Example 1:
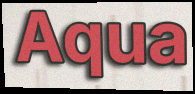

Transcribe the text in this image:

Aqua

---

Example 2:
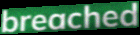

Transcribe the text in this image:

breached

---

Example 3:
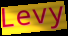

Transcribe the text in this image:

Levy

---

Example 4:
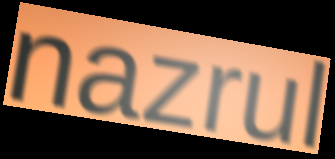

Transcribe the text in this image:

nazrul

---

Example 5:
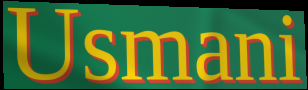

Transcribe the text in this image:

Usmani